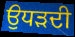
ਉਧੜਦੀ